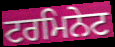
ਟਰਮਿਨੇਟ